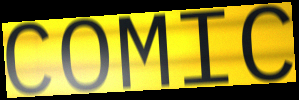
COMIC